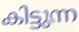
കിട്ടുന്ന